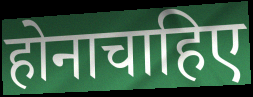
होनाचाहिए